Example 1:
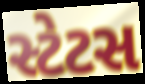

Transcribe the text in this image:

સ્ટેટસ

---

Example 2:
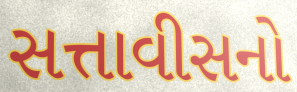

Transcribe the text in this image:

સત્તાવીસનો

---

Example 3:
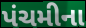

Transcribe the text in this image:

પંચમીના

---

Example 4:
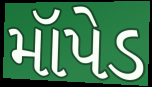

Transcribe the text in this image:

મૉપેડ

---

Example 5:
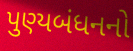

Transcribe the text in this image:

પુણ્યબંધનનો